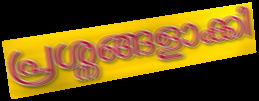
പ്രശ്നങ്ങളാക്കി